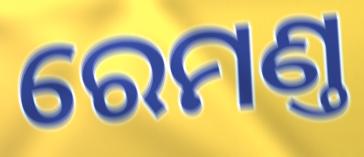
ରେମଣ୍ତ